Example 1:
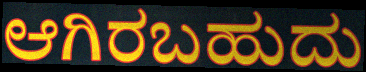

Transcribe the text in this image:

ಆಗಿರಬಹುದು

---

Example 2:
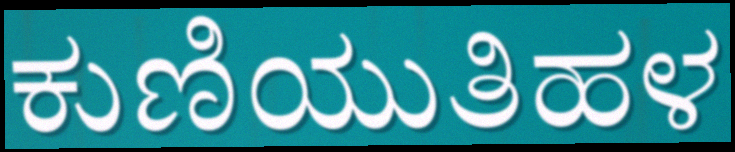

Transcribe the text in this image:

ಕುಣಿಯುತಿಹಳ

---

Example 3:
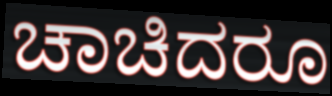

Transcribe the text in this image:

ಚಾಚಿದರೂ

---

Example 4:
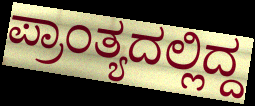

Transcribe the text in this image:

ಪ್ರಾಂತ್ಯದಲ್ಲಿದ್ದ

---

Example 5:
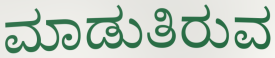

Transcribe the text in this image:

ಮಾಡುತಿರುವ